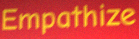
Empathize